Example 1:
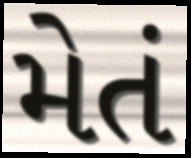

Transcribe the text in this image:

મેતં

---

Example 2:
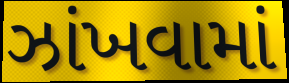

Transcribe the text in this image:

ઝાંખવામાં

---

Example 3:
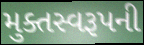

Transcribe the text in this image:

મુક્તસ્વરૂપની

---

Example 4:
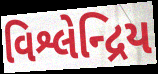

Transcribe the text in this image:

વિશ્લેન્દ્રિય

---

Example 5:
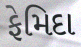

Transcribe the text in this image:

ફેમિદા